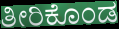
ತೀರಿಕೊಂಡ